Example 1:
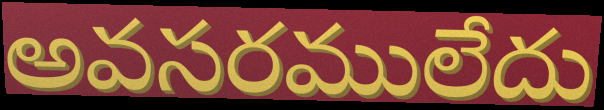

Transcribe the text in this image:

అవసరములేదు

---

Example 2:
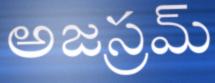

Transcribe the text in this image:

అజస్రమ్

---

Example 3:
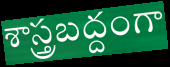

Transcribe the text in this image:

శాస్త్రబద్దంగా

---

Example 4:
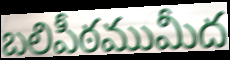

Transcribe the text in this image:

బలిపీఠముమీద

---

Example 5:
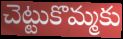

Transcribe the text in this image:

చెట్టుకొమ్మకు